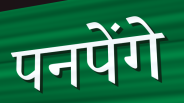
पनपेंगे